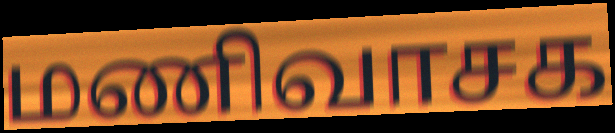
மணிவாசக